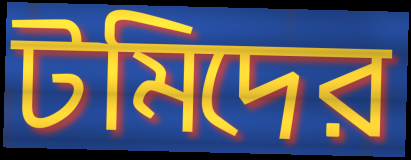
টমিদের